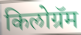
किलोग्रॅम